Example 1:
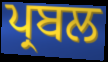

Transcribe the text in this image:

ਪ੍ਰਬਲ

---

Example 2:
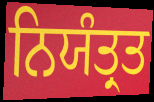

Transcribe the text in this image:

ਨਿਯੰਤ੍ਰਤ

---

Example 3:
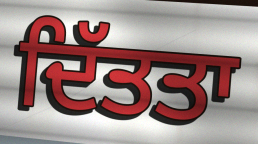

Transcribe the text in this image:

ਦਿੱਤਤਾ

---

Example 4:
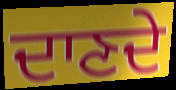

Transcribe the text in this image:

ਦਾਣਦੇ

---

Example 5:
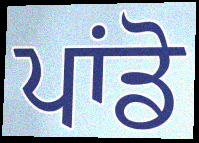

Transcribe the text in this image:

ਪਾਂਡੋ